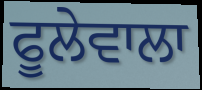
ਫੂਲੇਵਾਲਾ